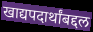
खाद्यपदार्थांबद्दल